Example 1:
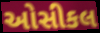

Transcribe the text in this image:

ઓસીકલ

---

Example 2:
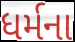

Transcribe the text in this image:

ધર્મના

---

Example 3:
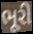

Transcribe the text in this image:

ભૂરી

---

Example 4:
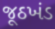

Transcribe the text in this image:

જૂઠખંડ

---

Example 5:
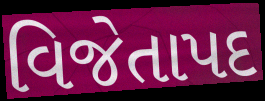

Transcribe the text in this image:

વિજેતાપદ